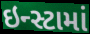
ઇન્સ્ટામાં